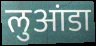
लुआंडा